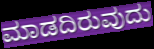
ಮಾಡದಿರುವುದು